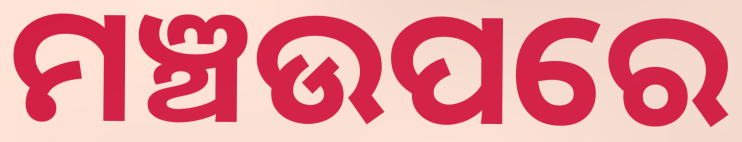
ମଞ୍ଚଉପରେ